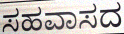
ಸಹವಾಸದ